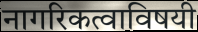
नागरिकत्वाविषयी